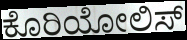
ಕೊರಿಯೋಲಿಸ್